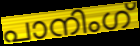
പാനിംഗ്